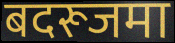
बदरूजमा